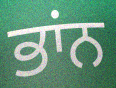
ਭਾਂਨ